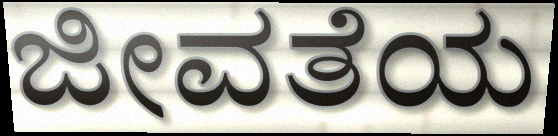
ಜೀವತೆಯ